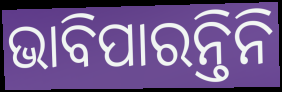
ଭାବିପାରନ୍ତିନି